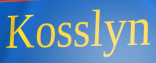
Kosslyn